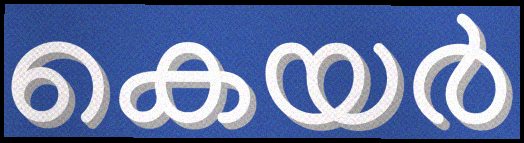
കെയർ